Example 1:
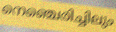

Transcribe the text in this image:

നെഞ്ചെരിച്ചിലും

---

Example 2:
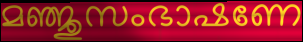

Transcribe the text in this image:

മഞ്ജുസംഭാഷണേ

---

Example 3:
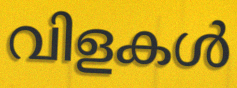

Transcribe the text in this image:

വിളകൾ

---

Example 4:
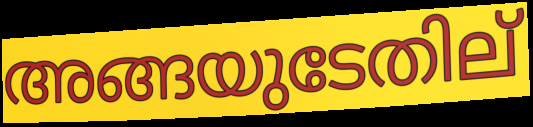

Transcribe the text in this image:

അങ്ങയുടേതില്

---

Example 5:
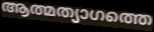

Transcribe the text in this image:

ആത്മത്യാഗത്തെ